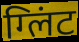
ग्लिंट